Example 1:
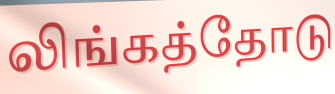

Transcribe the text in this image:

லிங்கத்தோடு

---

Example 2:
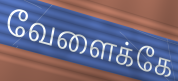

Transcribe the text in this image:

வேளைக்கே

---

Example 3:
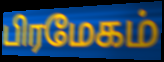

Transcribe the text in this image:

பிரமேகம்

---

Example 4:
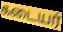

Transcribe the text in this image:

கடையர்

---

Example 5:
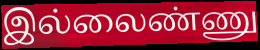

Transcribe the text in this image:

இல்லைண்ணு